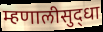
म्हणालीसुद्धा